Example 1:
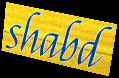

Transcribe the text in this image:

shabd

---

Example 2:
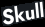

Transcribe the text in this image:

Skull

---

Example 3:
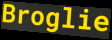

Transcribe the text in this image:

Broglie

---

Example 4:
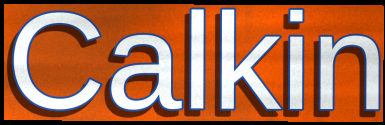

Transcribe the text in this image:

Calkin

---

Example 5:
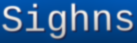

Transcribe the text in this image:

Sighns